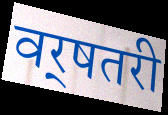
वर्षतरी